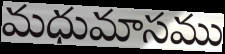
మధుమాసము